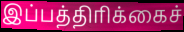
இப்பத்திரிக்கைச்